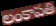
లంకాపతి